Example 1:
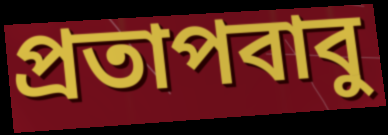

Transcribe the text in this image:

প্রতাপবাবু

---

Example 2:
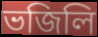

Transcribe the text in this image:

ভজিলি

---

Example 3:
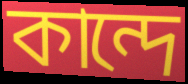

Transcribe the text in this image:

কান্দে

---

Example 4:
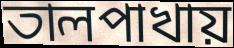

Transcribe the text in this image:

তালপাখায়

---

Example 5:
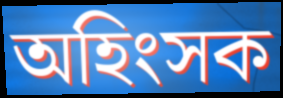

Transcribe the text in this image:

অহিংসক